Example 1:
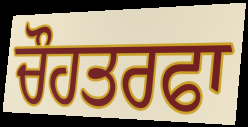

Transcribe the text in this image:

ਚੌਹਤਰਫਾ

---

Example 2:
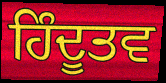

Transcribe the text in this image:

ਹਿੰਦੂਤਵ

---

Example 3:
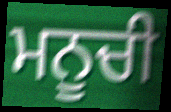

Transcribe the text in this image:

ਮਨੂਚੀ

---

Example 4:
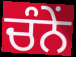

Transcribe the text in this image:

ਚੰਨੇਂ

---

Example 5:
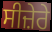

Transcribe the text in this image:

ਸੀਜ਼ੇਰੇ